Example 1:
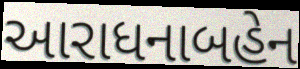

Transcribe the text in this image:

આરાધનાબહેન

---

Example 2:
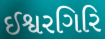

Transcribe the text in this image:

ઈશ્વરગિરિ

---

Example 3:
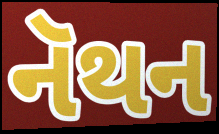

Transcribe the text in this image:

નૅથન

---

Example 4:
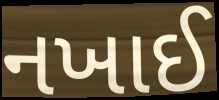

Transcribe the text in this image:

નખાઈ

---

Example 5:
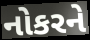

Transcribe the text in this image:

નોકરને